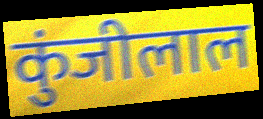
कुंजीलाल